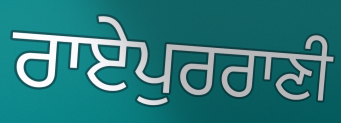
ਰਾਏਪੁਰਰਾਣੀ